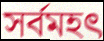
সর্বমহৎ